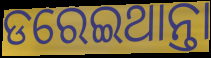
ଡରେଇଥାନ୍ତା